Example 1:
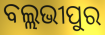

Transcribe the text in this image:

ବଲ୍ଲଭୀପୁର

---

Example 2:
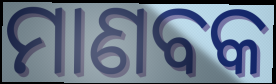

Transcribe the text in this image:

ମାଣବକ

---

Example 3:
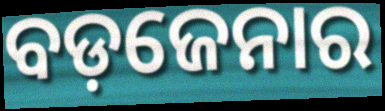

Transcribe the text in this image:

ବଡ଼ଜେନାର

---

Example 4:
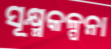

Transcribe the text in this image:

ସୂକ୍ଷ୍ମକଳ୍ପନା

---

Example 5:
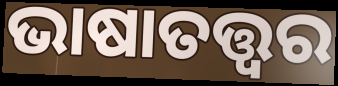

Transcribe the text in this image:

ଭାଷାତତ୍ତ୍ଵର